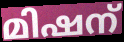
മിഷന്